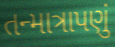
તન્માત્રાપણું